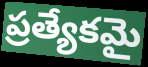
ప్రత్యేకమై